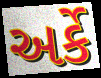
અર્કે